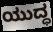
ಯುದ್ಧ